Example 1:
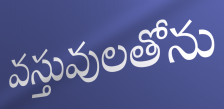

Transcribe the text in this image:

వస్తువులతోను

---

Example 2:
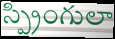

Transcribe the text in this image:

స్ప్రింగులా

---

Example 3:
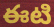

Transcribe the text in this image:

ఈటి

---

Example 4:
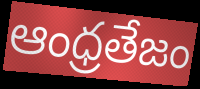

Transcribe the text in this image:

ఆంధ్రతేజం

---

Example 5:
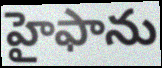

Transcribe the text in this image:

హైఫాను